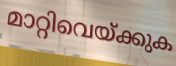
മാറ്റിവെയ്ക്കുക